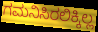
ಗಮನಿಸಿರಲಿಕ್ಕಿಲ್ಲ